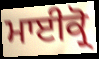
ਮਾਈਕ੍ਰੋ